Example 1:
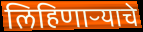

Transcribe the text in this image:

लिहिणाऱ्याचे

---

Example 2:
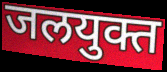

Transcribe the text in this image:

जलयुक्त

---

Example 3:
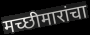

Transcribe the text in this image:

मच्छीमारांचा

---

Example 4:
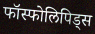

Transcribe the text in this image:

फॉस्फोलिपिड्स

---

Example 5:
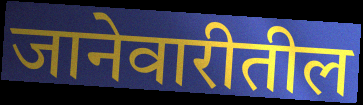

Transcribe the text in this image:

जानेवारीतील